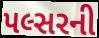
પલ્સરની